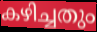
കഴിച്ചതും